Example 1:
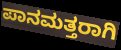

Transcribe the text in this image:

ಪಾನಮತ್ತರಾಗಿ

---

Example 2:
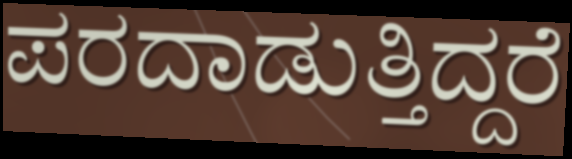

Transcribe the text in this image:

ಪರದಾಡುತ್ತಿದ್ದರೆ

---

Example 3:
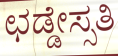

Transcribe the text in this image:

ಛಡ್ಡೇಸ್ಸತಿ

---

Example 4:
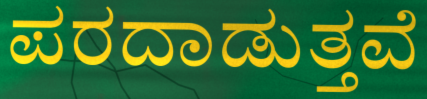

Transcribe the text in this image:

ಪರದಾಡುತ್ತವೆ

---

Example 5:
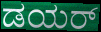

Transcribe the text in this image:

ಡಯರ್